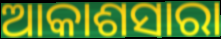
ଆକାଶସାରା